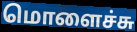
மொளைச்சு